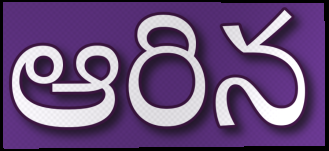
ఆరిన